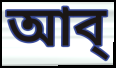
আব্